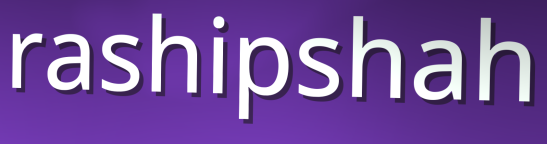
rashipshah